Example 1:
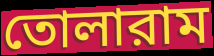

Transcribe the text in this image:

তোলারাম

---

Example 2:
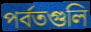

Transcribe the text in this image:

পর্বতগুলি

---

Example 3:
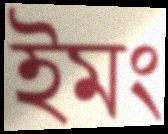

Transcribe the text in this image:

ইমং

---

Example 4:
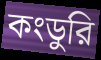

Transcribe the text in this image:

কংডুরি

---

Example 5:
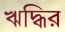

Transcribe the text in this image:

ঋদ্ধির